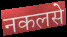
नकलसे